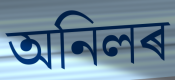
অনিলৰ